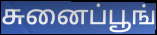
சுனைப்பூங்